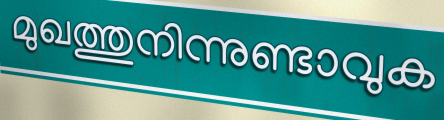
മുഖത്തുനിന്നുണ്ടാവുക